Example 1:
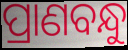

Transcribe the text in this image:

ପ୍ରାଣବନ୍ଧୁ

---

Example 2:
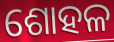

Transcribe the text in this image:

ଶୋହଳ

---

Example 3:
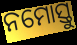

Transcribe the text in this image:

ନମୋସ୍ତୁ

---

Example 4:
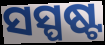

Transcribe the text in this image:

ସସ୍ପଷ୍ଟ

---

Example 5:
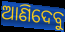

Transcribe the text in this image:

ଆଣିଦେବୁ